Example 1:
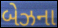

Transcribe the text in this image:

બેઝના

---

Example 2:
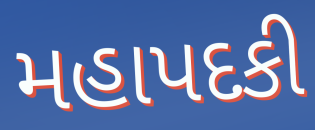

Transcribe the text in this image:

મહાપદકી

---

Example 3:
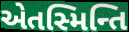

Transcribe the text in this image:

એતસ્મિન્તિ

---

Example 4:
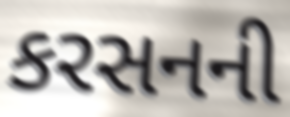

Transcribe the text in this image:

કરસનની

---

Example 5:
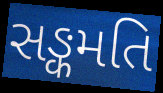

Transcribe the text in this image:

સઙ્કમતિ